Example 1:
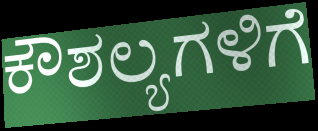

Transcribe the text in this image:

ಕೌಶಲ್ಯಗಳಿಗೆ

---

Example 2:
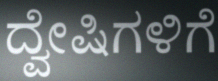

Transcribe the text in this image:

ದ್ವೇಷಿಗಳಿಗೆ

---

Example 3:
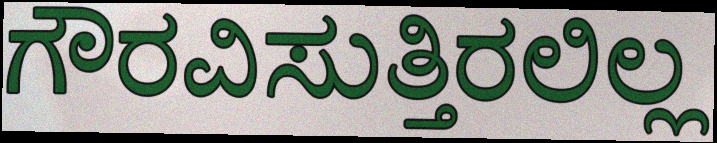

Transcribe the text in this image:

ಗೌರವಿಸುತ್ತಿರಲಿಲ್ಲ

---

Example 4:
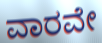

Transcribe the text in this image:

ವಾರವೇ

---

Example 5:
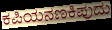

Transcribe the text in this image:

ಕಪಿಯನಣಕಿಪುದು